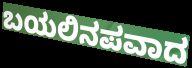
ಬಯಲಿನಪವಾದ